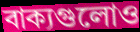
বাক্যগুলোও